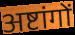
अष्टांगों